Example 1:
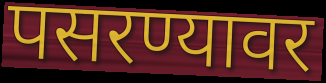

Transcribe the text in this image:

पसरण्यावर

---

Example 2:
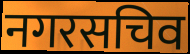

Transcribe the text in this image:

नगरसचिव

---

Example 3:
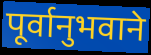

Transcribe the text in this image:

पूर्वानुभवाने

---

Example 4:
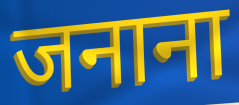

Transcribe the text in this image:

जनाना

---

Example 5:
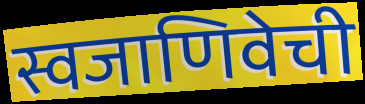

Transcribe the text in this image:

स्वजाणिवेची